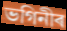
ভগিনীৰ